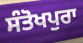
ਸੰਤੋਖਪੁਰਾ